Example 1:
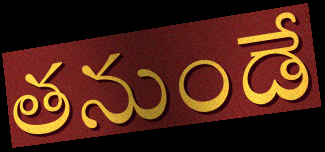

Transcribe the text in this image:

తనుండే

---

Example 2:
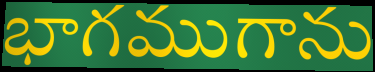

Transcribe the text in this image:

భాగముగాను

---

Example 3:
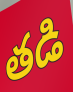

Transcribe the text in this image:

తడి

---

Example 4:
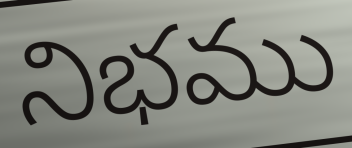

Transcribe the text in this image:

నిభము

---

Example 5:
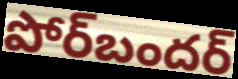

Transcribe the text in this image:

పోర్‌బందర్